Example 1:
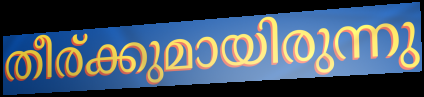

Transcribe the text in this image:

തീര്ക്കുമായിരുന്നു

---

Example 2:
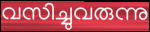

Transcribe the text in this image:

വസിച്ചുവരുന്നു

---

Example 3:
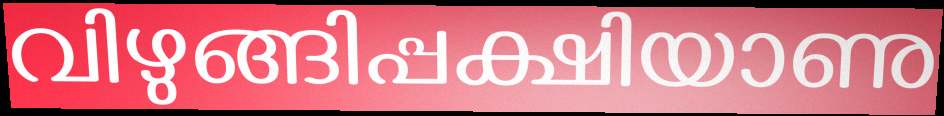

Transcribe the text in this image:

വിഴുങ്ങിപ്പക്ഷിയാണു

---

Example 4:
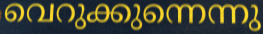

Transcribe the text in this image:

വെറുക്കുന്നെന്നു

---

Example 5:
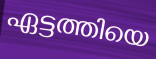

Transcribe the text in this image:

ഏട്ടത്തിയെ